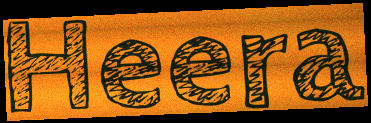
Heera